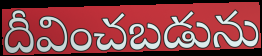
దీవించబడును